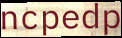
ncpedp